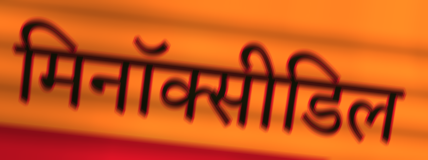
मिनॉक्सीडिल